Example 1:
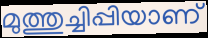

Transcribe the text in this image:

മുത്തുച്ചിപ്പിയാണ്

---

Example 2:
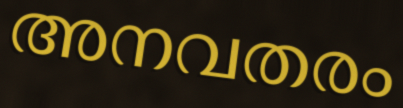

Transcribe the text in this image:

അനവതരം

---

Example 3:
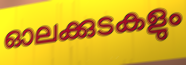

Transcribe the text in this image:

ഓലക്കുടകളും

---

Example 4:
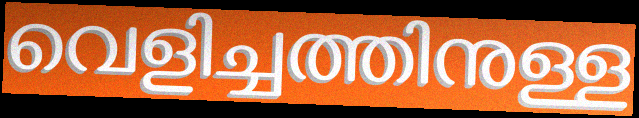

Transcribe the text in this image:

വെളിച്ചത്തിനുള്ള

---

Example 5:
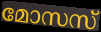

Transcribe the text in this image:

മോസസ്